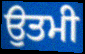
ਉਤਮੀ